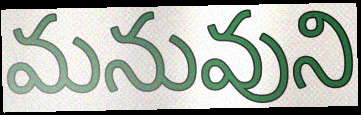
మనువుని